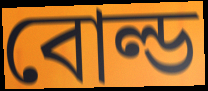
বোল্ড